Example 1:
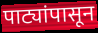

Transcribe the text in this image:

पाट्यांपासून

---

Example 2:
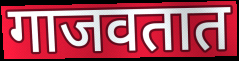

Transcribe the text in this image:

गाजवतात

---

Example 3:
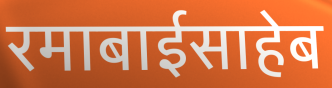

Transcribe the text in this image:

रमाबाईसाहेब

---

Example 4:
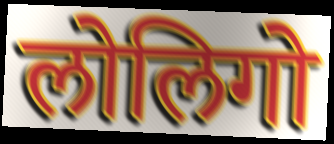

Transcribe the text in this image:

लोलिगो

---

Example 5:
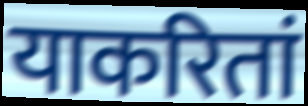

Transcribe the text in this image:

याकरितां